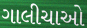
ગાલીચાઓ